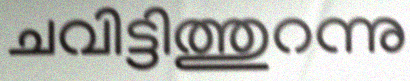
ചവിട്ടിത്തുറന്നു